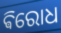
ଵିରୋଧ